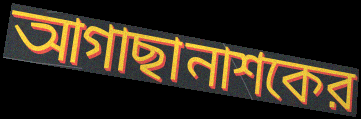
আগাছানাশকের